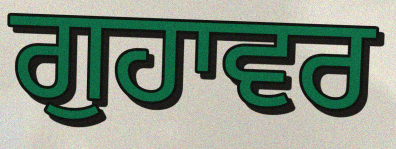
ਗੁਹਾਵਰ